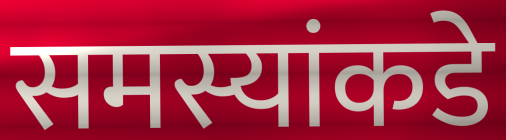
समस्यांकडे